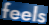
feels